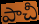
పాచీ